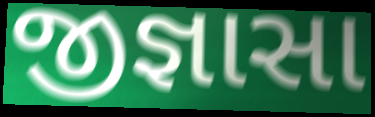
જીજ્ઞાસા